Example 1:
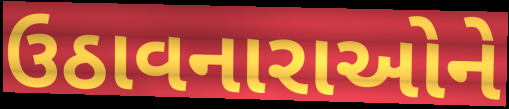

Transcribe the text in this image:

ઉઠાવનારાઓને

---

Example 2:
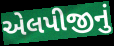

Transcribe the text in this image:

એલપીજીનું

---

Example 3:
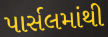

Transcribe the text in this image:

પાર્સલમાંથી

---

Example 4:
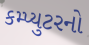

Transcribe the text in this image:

કમ્પ્યુટરનો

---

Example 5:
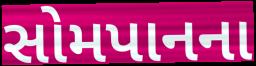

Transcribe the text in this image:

સોમપાનના